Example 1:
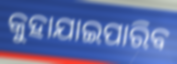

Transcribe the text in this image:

କୁହାଯାଇପାରିବ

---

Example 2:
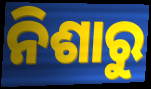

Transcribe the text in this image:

ନିଶାରୁ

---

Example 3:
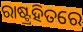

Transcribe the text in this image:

ରାଷ୍ଟ୍ରହିତରେ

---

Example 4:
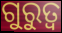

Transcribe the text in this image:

ଗୁରୁତ୍ବ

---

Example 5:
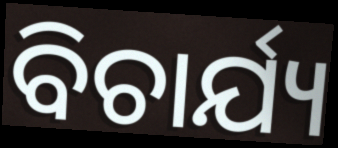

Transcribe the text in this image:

ବିଚାର୍ଯ୍ୟ